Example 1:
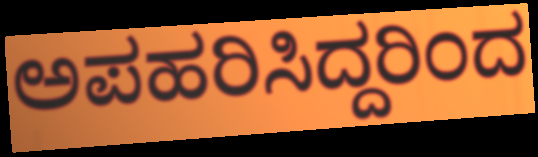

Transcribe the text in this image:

ಅಪಹರಿಸಿದ್ದರಿಂದ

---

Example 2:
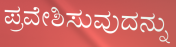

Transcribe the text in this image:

ಪ್ರವೇಶಿಸುವುದನ್ನು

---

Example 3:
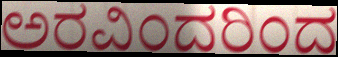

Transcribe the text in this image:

ಅರವಿಂದರಿಂದ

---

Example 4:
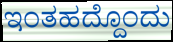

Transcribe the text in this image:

ಇಂತಹದ್ದೊಂದು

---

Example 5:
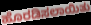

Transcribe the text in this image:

ಹೊರಡಿಸಲಾಯಿತು